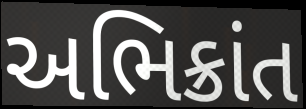
અભિક્રાંત